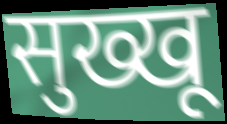
सुख्खू